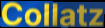
Collatz